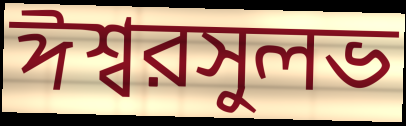
ঈশ্বরসুলভ